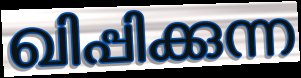
ഖിപ്പിക്കുന്ന